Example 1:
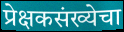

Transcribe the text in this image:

प्रेक्षकसंख्येचा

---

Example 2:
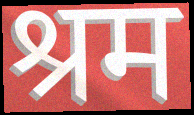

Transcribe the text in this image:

श्रम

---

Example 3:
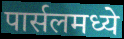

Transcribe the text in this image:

पार्सलमध्ये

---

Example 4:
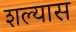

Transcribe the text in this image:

शल्यास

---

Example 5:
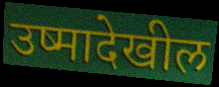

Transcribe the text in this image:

उष्मादेखील